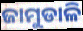
ଜାମୁଡାଳି